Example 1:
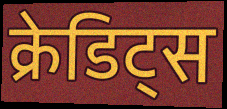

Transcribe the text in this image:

क्रेडिट्स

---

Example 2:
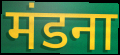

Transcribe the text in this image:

मंडना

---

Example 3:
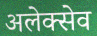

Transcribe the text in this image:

अलेक्सेव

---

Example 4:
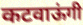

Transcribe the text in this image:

कटवाऊंगी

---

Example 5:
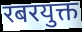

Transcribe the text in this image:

रबरयुक्त